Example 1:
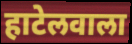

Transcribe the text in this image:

हाटेलवाला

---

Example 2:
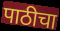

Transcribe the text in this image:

पाठीचा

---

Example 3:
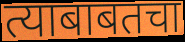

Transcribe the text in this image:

त्याबाबतचा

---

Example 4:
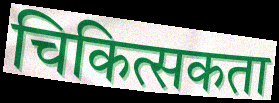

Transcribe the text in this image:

चिकित्सकता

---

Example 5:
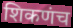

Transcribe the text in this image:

शिकणंच